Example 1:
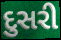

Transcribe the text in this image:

દુસરી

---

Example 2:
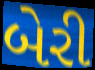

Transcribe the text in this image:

બેરી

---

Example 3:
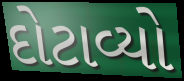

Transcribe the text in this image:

દોટાવ્યો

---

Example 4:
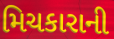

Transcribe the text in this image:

મિચકારાની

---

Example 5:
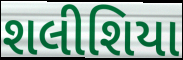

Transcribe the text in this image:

શલીશિયા